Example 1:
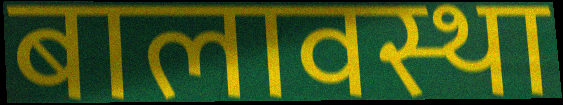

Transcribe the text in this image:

बालावस्था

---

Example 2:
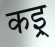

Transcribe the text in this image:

कइ्र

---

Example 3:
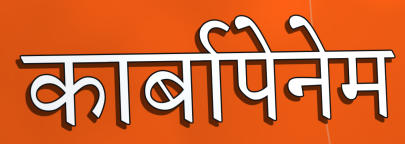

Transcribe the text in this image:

कार्बापेनेम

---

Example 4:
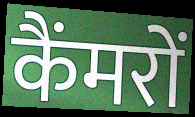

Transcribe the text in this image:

कैंमरों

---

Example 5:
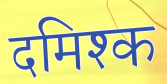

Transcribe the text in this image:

दमिश्क